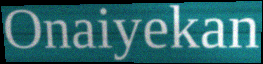
Onaiyekan